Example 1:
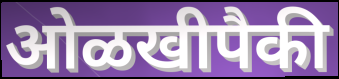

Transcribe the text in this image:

ओळखीपैकी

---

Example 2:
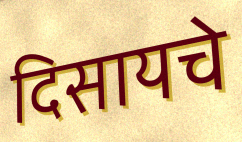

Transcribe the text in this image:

दिसायचे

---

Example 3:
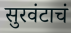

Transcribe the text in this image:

सुरवंटाचं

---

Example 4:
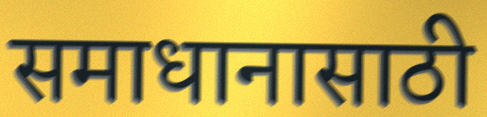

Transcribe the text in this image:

समाधानासाठी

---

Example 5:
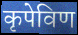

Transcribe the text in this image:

कृपेविण